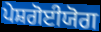
ਪੇਸ਼ਗੋਈਯੋਗ